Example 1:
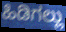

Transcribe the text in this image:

ಹಿಡಿಗಲ್ಲು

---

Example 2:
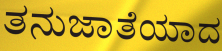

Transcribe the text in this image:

ತನುಜಾತೆಯಾದ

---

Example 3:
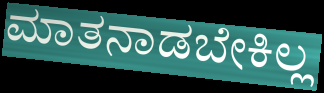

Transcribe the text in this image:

ಮಾತನಾಡಬೇಕಿಲ್ಲ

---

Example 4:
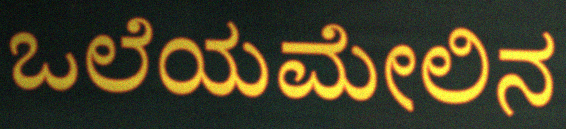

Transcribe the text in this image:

ಒಲೆಯಮೇಲಿನ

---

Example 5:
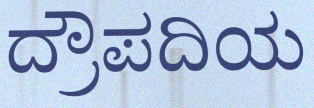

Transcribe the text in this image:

ದ್ರೌಪದಿಯ